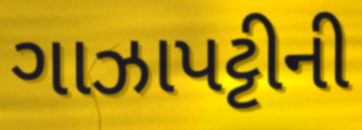
ગાઝાપટ્ટીની